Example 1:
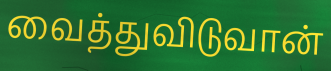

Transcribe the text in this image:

வைத்துவிடுவான்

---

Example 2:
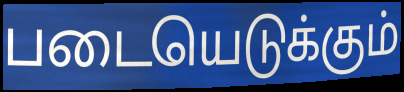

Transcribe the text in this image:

படையெடுக்கும்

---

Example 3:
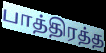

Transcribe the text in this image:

பாத்திரத்த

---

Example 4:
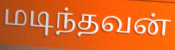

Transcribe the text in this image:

மடிந்தவன்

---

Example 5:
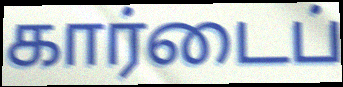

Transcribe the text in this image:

கார்டைப்